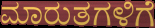
ಮಾರುತಗಳಿಗೆ